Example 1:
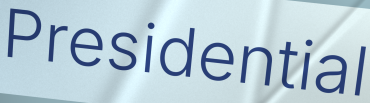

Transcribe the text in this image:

Presidential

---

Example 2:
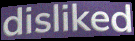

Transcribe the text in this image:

disliked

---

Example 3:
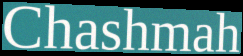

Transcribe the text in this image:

Chashmah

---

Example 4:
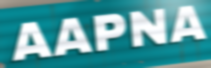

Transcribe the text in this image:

AAPNA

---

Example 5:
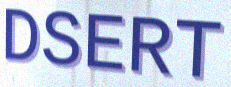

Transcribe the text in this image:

DSERT